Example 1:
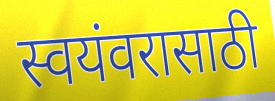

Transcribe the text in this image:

स्वयंवरासाठी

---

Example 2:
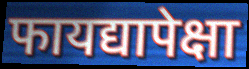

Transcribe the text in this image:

फायद्यापेक्षा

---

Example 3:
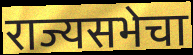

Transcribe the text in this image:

राज्यसभेचा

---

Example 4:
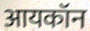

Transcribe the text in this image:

आयकॉन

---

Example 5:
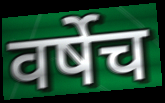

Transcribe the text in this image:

वर्षेच